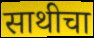
साथीचा